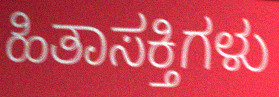
ಹಿತಾಸಕ್ತಿಗಳು